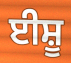
ਈਸ਼ੂ